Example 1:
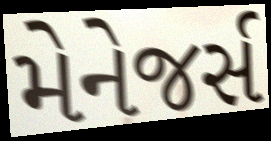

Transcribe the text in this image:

મેનેજર્સ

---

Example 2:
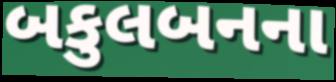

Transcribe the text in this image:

બકુલબનના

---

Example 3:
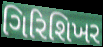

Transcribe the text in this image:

ગિરિશિખર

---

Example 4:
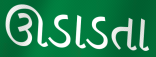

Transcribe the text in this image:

ઊડાડતા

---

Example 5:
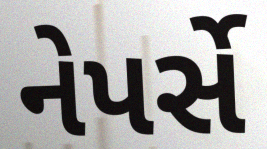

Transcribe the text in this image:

નેપર્સે